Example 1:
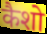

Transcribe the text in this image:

कैशो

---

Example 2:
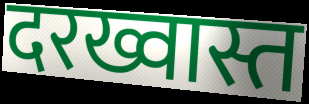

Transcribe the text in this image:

दरख्वास्त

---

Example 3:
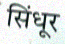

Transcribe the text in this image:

सिंधूर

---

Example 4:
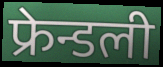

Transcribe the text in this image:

फ्रेन्डली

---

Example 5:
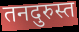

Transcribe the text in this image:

तनदुरुस्त